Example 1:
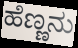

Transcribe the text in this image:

ಹೆಣ್ಣನು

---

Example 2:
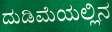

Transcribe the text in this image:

ದುಡಿಮೆಯಲ್ಲಿನ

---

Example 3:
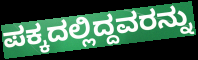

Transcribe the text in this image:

ಪಕ್ಕದಲ್ಲಿದ್ದವರನ್ನು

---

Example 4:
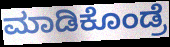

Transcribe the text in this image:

ಮಾಡಿಕೊಂಡ್ರೆ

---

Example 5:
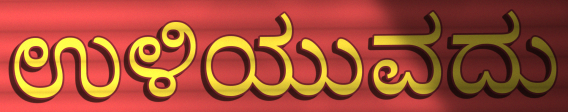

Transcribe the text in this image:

ಉಳಿಯುವದು